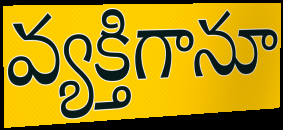
వ్యక్తిగానూ